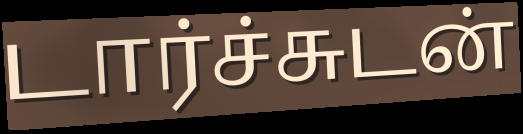
டார்ச்சுடன்